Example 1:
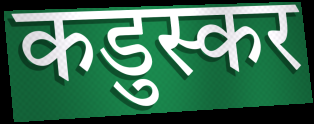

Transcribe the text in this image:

कडुस्कर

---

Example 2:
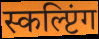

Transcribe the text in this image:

स्कल्प्टिंग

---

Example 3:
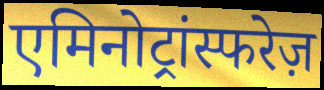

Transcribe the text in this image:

एमिनोट्रांस्फरेज़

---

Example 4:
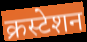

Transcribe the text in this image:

क्रस्टेशन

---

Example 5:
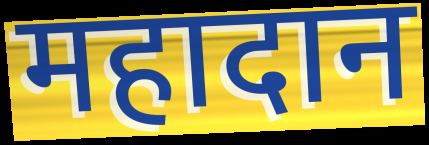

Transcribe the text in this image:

महादान